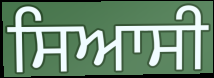
ਸਿਆਸੀ